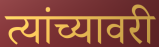
त्यांच्यावरी